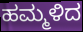
ಹಮ್ಮಳಿದ